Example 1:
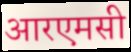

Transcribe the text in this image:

आरएमसी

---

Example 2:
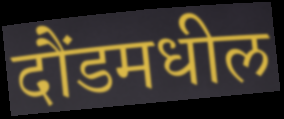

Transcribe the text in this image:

दौंडमधील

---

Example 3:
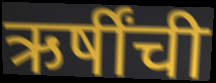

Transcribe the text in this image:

ऋर्षींची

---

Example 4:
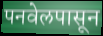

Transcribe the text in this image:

पनवेलपासून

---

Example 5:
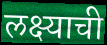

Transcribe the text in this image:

लक्ष्याची